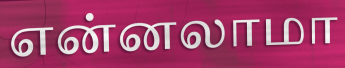
என்னலாமா